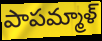
పాపమ్మాళ్